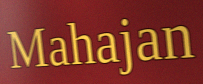
Mahajan